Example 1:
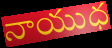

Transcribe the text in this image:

నాయుధ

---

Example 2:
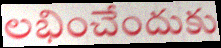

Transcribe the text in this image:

లభించేందుకు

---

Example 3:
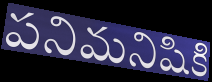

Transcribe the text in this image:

పనిమనిషికి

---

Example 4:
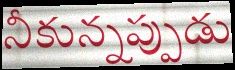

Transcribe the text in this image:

నీకున్నప్పుడు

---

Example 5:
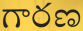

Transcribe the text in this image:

గారణ